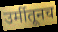
उर्मीतूनच